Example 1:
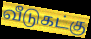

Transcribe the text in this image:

வீடுகட்கு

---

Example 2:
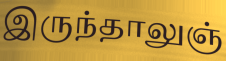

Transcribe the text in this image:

இருந்தாலுஞ்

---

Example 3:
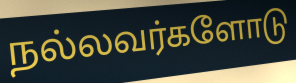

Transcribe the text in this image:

நல்லவர்களோடு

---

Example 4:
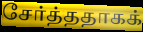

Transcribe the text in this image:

சேர்த்ததாகக்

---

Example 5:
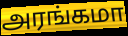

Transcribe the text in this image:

அரங்கமா